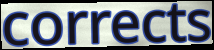
corrects